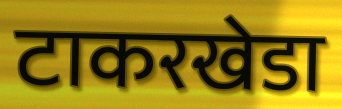
टाकरखेडा